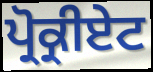
ਪ੍ਰੋਕ੍ਰੀਏਟ